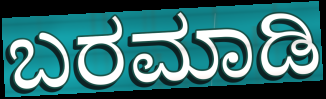
ಬರಮಾಡಿ